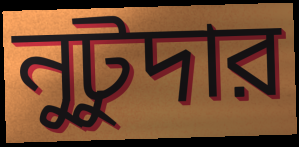
নুটুদার